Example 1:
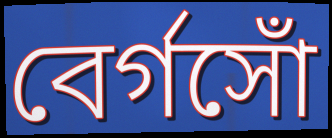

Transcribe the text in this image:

বের্গসোঁ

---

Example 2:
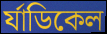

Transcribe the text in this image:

র্যাডিকেল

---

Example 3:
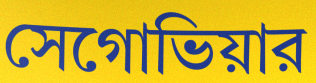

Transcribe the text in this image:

সেগোভিয়ার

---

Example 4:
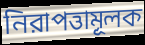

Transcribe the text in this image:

নিরাপত্তামূলক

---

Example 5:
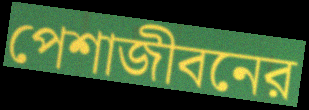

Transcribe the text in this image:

পেশাজীবনের